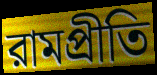
রামপ্রীতি